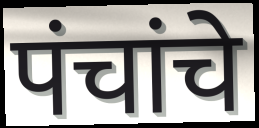
पंचांचे